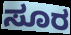
ಸೂರ